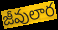
జీవులార